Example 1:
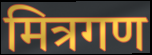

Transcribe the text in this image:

मित्रगण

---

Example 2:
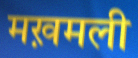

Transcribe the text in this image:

मख़मली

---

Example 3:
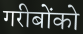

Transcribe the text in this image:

गरीबोंको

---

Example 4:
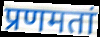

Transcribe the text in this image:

प्रणमतां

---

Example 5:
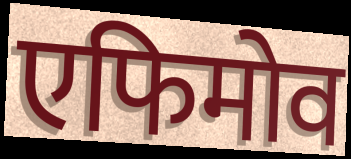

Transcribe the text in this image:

एफिमोव